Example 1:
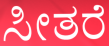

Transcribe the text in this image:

ಸೀತರೆ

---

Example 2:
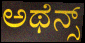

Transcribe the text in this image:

ಅಥೆನ್ಸ್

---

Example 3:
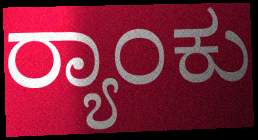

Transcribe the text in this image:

ರ್‍ಯಾಂಕು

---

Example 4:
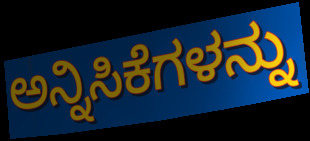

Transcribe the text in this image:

ಅನ್ನಿಸಿಕೆಗಳನ್ನು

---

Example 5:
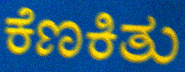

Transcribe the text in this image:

ಕೆಣಕಿತು